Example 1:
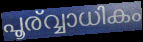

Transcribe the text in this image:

പൂര്വ്വാധികം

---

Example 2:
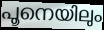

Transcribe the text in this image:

പൂനെയിലും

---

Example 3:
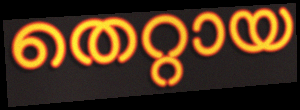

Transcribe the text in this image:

തെറ്റായ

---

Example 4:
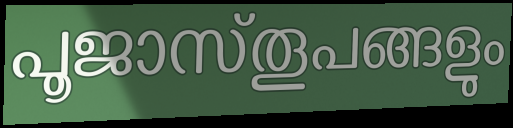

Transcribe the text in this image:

പൂജാസ്‌തൂപങ്ങളും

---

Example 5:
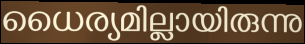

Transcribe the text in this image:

ധൈര്യമില്ലായിരുന്നു